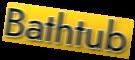
Bathtub